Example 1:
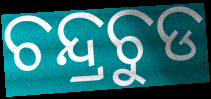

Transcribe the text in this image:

ଚନ୍ଦ୍ରଚୁଡ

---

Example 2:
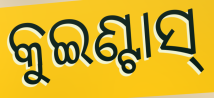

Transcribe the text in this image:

କୁଇଣ୍ଟାସ୍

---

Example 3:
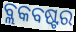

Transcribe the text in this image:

ବ୍ଲକବଷ୍ଟର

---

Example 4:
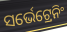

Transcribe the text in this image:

ସର୍ଭେଟ୍ରେନିଂ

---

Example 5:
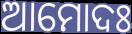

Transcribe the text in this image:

ଆମୋଦଃ